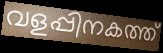
വളപ്പിനകത്ത്